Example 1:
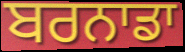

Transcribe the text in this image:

ਬਰਨਾਡਾ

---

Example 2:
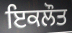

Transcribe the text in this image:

ਇਕਲੌਤ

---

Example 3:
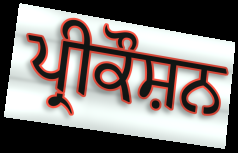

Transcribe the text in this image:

ਪ੍ਰੀਕੌਸ਼ਨ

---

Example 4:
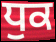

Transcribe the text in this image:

ਧੁਕ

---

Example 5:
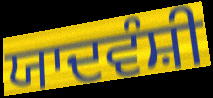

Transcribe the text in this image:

ਯਾਦਵੰਸ਼ੀ